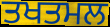
ਤਖਤਮਲ